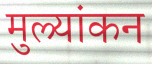
मुल्यांकन